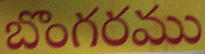
బొంగరము